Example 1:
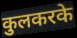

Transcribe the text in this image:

कुलकरके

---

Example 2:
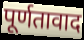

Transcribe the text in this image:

पूर्णतावाद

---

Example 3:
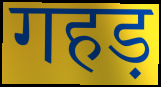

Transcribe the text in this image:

गहड़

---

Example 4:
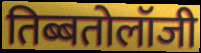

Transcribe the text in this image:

तिब्बतोलॉजी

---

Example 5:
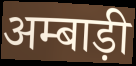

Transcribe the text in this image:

अम्बाड़ी